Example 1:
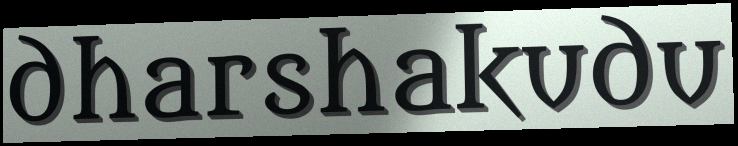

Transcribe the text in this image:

dharshakudu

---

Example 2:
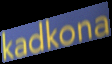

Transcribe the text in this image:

kadkona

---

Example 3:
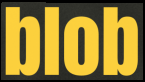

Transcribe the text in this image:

blob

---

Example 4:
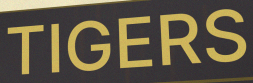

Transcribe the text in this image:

TIGERS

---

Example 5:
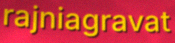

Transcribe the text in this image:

rajniagravat